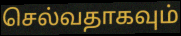
செல்வதாகவும்